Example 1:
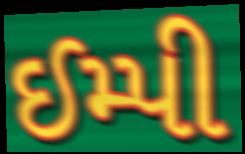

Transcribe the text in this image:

ઈમ્પી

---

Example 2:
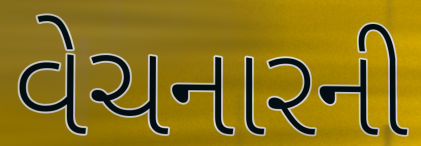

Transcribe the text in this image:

વેચનારની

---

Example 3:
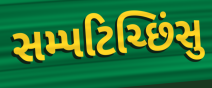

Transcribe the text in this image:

સમ્પટિચ્છિંસુ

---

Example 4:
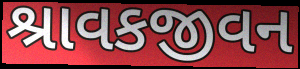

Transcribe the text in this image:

શ્રાવકજીવન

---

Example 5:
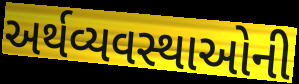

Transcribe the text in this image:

અર્થવ્યવસ્થાઓની